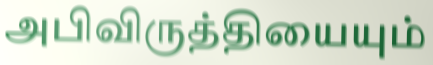
அபிவிருத்தியையும்